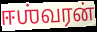
ஈஶ்வரன்